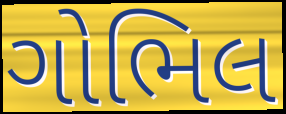
ગોભિલ